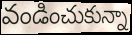
వండించుకున్నా